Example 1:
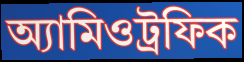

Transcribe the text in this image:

অ্যামিওট্রফিক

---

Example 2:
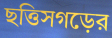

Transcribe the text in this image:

ছত্তিসগড়ের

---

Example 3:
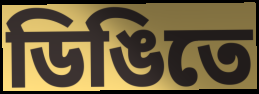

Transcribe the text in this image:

ডিঙিতে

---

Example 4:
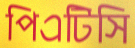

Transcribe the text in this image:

পিএটিসি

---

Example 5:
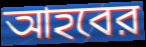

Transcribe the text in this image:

আহবের